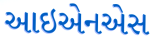
આઇએનએસ